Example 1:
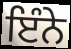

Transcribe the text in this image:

ਇੰਨੇ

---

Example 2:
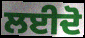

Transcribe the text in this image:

ਲਈਦੋ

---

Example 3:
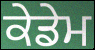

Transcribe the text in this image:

ਕੇਡੇਮ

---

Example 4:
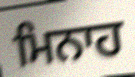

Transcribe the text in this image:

ਮਿਨਾਹ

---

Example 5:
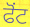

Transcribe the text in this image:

ਫੋਂਟ